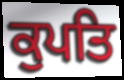
ਕੁਪਤਿ